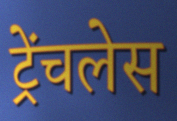
ट्रेंचलेस